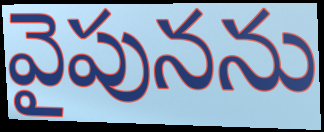
వైపునను